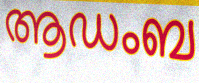
ആഡംബ